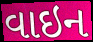
વાઇન